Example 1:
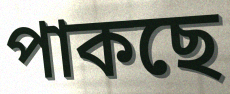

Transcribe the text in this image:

পাকছে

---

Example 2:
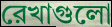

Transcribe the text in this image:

রেখাগুলো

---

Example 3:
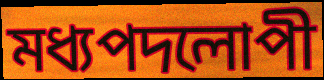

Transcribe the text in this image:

মধ্যপদলোপী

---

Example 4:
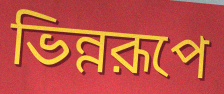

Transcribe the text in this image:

ভিন্নরূপে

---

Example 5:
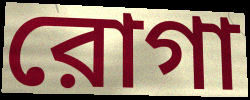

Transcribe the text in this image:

রোগা